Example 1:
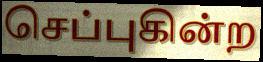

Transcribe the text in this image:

செப்புகின்ற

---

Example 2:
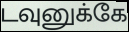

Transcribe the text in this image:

டவுனுக்கே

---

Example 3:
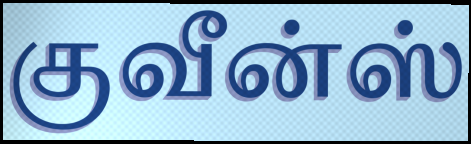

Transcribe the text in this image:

குவீன்ஸ்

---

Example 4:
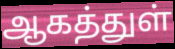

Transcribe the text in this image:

ஆகத்துள்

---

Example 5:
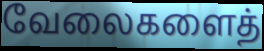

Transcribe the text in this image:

வேலைகளைத்